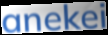
anekei